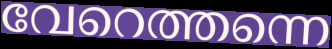
വേറെത്തന്നെ